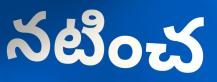
నటించ